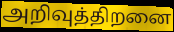
அறிவுத்திறனை